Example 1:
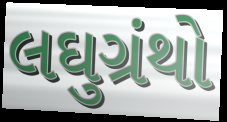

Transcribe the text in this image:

લઘુગ્રંથો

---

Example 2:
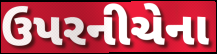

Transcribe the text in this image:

ઉપરનીચેના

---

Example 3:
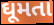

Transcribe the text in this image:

ઘૂમતા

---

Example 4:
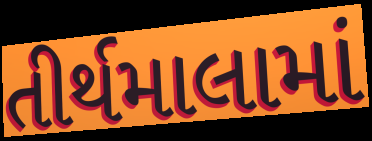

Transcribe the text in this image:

તીર્થમાલામાં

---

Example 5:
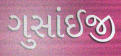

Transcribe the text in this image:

ગુસાંઈજી